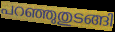
പറഞ്ഞുതുടങ്ങി